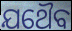
ଯଥୈବ